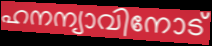
ഹനന്യാവിനോട്